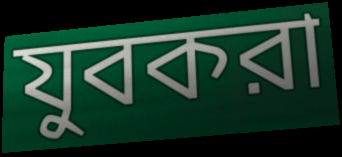
যুবকরা